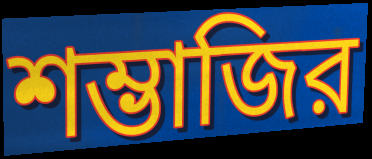
শম্ভাজির